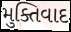
મુક્તિવાદ